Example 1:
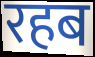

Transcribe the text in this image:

रहब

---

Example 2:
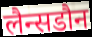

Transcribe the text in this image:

लैन्सडौन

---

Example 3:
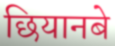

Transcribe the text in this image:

छियानबे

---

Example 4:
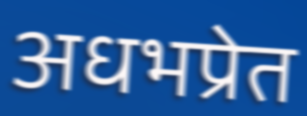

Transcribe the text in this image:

अधभप्रेत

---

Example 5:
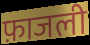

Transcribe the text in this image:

फ़ाजली